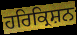
ਹਰਿਕ੍ਰਿਸ਼ਨ